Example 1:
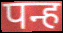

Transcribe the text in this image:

पन्ह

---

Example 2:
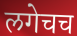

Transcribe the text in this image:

लगेचच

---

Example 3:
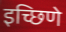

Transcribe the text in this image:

इच्छिणे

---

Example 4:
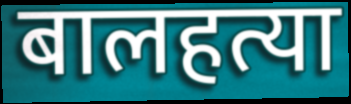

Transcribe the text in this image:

बालहत्या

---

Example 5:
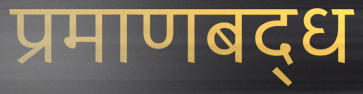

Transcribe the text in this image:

प्रमाणबद्ध